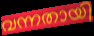
വന്നതായി